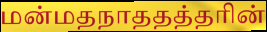
மன்மதநாததத்தரின்